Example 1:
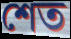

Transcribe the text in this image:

শেত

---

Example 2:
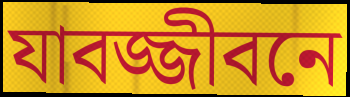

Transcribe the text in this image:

যাবজ্জীবনে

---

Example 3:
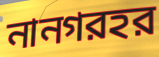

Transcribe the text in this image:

নানগরহর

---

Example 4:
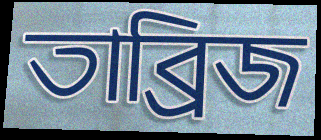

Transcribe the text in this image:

তাব্রিজ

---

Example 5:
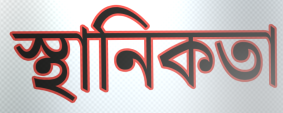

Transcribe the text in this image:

স্থানিকতা